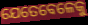
ଯେତେବେଳେକୁ